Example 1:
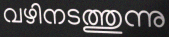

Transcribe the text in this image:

വഴിനടത്തുന്നു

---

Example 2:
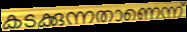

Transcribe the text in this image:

കടക്കുന്നതാണെന്ന്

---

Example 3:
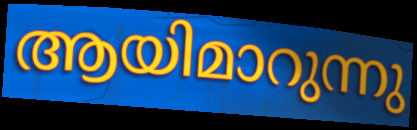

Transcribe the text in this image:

ആയിമാറുന്നു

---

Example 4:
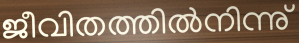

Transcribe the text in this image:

ജീവിതത്തിൽനിന്നു്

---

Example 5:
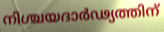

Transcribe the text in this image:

നിശ്ചയദാർഢ്യത്തിന്